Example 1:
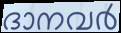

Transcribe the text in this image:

ദാനവർ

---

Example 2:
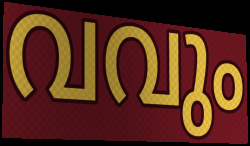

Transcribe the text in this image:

വവും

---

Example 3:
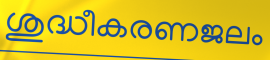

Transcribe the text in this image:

ശുദ്ധീകരണജലം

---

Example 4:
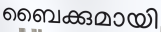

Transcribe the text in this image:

ബൈക്കുമായി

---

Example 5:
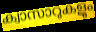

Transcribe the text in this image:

ക്വാസാറുകളും